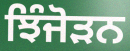
ਝਿੰਜੋੜਨ